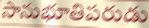
సానుభూతిపరుడు